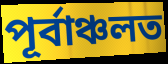
পূৰ্বাঞ্চলত